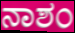
ನಾಶಂ